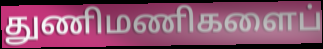
துணிமணிகளைப்